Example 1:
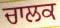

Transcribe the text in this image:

ਚਾਲਕ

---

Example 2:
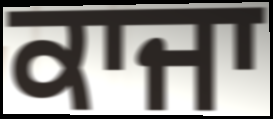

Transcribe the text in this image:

ਕਾਜਾ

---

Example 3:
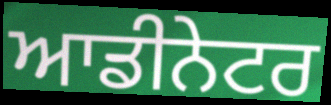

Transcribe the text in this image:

ਆਡੀਨੇਟਰ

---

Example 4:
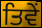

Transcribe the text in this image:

ਤਿਵੇਂ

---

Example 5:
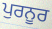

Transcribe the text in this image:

ਪੁਰਨੂਰ